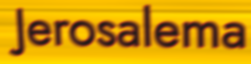
Jerosalema